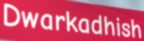
Dwarkadhish